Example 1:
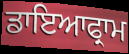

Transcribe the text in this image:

ਡਾਇਆਫ੍ਰਾਮ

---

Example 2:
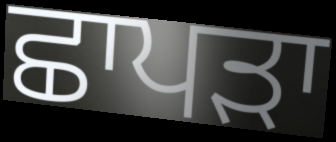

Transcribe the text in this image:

ਛਾਪੜਾ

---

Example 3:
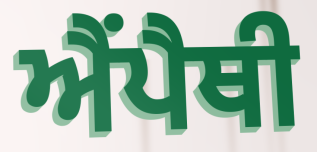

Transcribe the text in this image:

ਐਂਪੈਥੀ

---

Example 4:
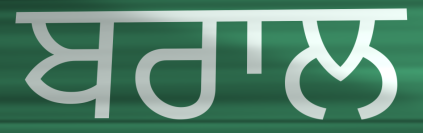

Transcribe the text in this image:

ਬਰਾਲ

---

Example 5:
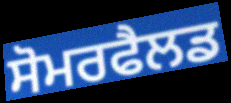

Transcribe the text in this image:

ਸੋਮਰਫੈਲਡ